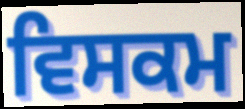
ਵਿਸਕਮ